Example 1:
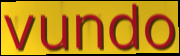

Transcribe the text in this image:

vundo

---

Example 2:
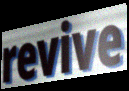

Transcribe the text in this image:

revive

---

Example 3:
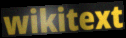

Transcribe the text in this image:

wikitext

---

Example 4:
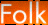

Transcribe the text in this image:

Folk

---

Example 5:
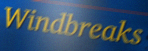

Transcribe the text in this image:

Windbreaks